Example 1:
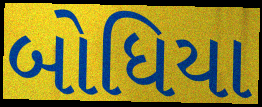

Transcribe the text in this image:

બોધિયા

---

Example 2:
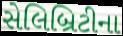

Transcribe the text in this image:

સેલિબ્રિટીના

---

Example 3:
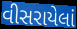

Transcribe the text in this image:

વીસરાયેલાં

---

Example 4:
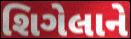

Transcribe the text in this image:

શિગેલાને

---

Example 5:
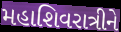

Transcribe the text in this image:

મહાશિવરાત્રીને